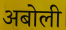
अबोली